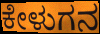
ಕೇಳುಗನ